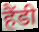
हैंडी